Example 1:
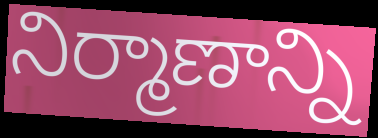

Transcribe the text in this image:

నిర్మాణాన్ని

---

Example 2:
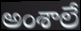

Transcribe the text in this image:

అంశాలే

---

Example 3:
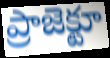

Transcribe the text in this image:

ప్రాజెక్టూ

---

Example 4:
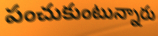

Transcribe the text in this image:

పంచుకుంటున్నారు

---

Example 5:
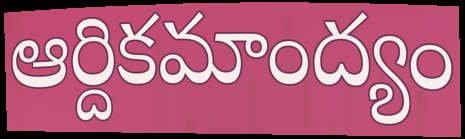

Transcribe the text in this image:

ఆర్దికమాంద్యం